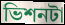
ভিশনটা